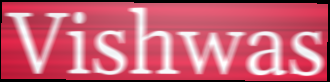
Vishwas